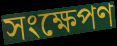
সংক্ষেপণ